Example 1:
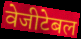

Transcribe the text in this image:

वेजीटेबल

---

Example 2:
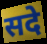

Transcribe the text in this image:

सदे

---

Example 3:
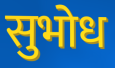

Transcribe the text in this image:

सुभोध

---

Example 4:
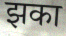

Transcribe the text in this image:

झका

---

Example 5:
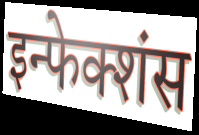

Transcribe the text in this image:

इन्फेक्शंस